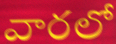
వారలో